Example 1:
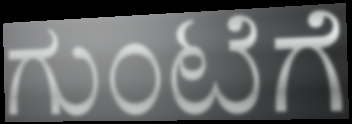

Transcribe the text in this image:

ಗುಂಟೆಗೆ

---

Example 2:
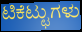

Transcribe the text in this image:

ಟಿಕೆಟ್ಟುಗಳು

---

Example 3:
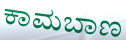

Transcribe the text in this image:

ಕಾಮಬಾಣ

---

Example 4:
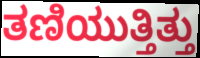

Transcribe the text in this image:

ತಣಿಯುತ್ತಿತ್ತು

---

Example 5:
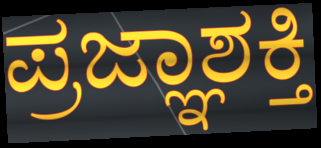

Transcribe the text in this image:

ಪ್ರಜ್ಞಾಶಕ್ತಿ